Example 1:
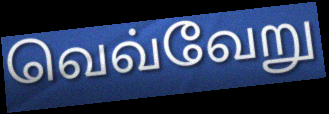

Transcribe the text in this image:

வெவ்வேறு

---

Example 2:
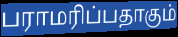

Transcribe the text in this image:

பராமரிப்பதாகும்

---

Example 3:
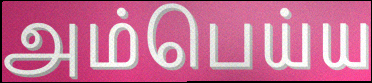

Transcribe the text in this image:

அம்பெய்ய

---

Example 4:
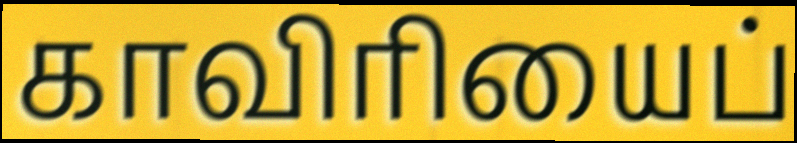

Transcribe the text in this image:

காவிரியைப்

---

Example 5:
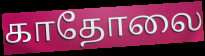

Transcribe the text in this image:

காதோலை